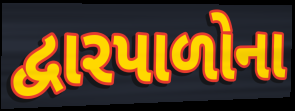
દ્વારપાળોના